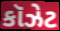
કૉઝેટ